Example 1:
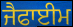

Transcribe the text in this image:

ਜੈਫਾਈਮ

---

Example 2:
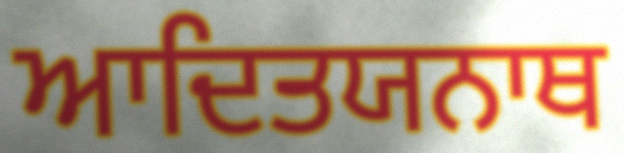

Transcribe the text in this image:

ਆਦਿਤਯਨਾਥ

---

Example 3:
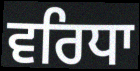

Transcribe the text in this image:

ਵਰਿਧਾ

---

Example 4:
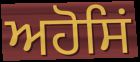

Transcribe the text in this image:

ਅਹੋਸਿਂ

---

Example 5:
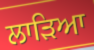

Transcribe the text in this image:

ਲਾੜਿਆ